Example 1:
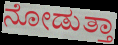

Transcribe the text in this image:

ನೋಡುತ್ತಾ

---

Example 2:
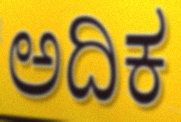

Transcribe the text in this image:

ಅದಿಕ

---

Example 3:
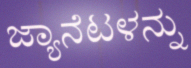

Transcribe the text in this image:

ಜ್ಯಾನೆಟಳನ್ನು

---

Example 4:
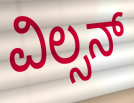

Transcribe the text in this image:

ವಿಲ್ಸನ್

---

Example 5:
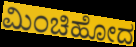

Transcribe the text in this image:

ಮಿಂಚಿಹೋದ